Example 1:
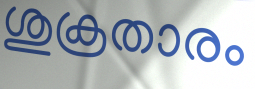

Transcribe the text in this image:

ശുക്രതാരം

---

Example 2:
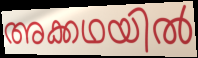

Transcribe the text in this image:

അക്കഥയിൽ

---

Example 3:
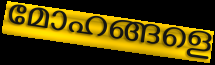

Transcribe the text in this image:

മോഹങ്ങളെ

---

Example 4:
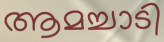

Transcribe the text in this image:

ആമച്ചാടി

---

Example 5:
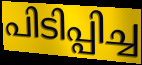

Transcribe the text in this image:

പിടിപ്പിച്ച